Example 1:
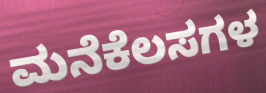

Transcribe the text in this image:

ಮನೆಕೆಲಸಗಳ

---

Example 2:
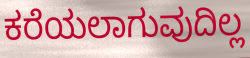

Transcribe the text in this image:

ಕರೆಯಲಾಗುವುದಿಲ್ಲ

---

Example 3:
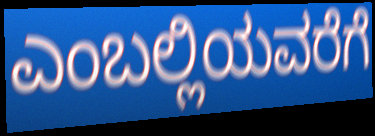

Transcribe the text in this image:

ಎಂಬಲ್ಲಿಯವರೆಗೆ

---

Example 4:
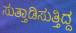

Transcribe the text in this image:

ಸುತ್ತಾಡಿಸುತ್ತಿದ್ದ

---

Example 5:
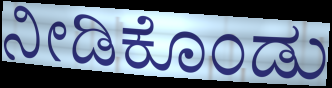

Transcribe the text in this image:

ನೀಡಿಕೊಂಡು